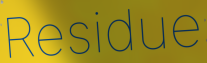
Residue